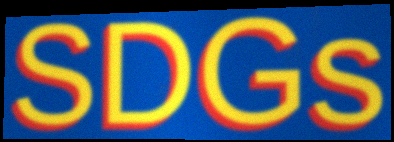
SDGs